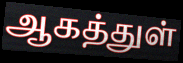
ஆகத்துள்